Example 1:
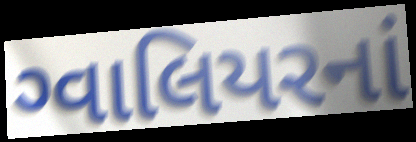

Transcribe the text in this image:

ગ્વાલિયરનાં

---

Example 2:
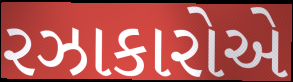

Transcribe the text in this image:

રઝાકારોએ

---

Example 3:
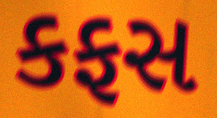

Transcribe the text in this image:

કફસ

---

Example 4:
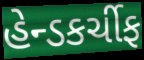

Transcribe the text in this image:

હેન્ડકર્ચીફ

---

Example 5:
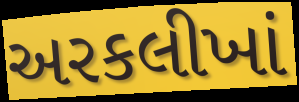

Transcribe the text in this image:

અરકલીખાં